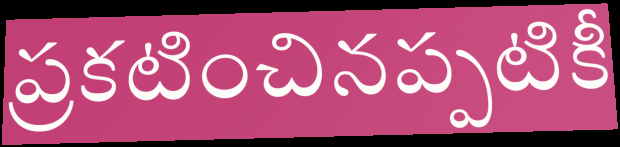
ప్రకటించినప్పటికీ